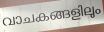
വാചകങ്ങളിലും